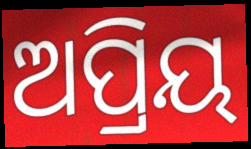
ଅପ୍ରିୟ